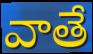
వాతే